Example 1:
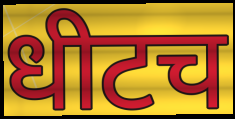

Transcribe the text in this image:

धीटच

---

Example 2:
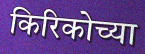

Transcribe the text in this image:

किरिकोच्या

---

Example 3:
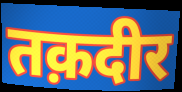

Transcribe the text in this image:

तक़दीर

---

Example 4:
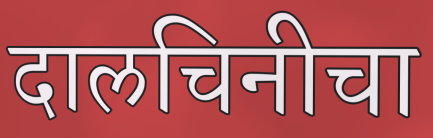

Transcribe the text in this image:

दालचिनीचा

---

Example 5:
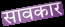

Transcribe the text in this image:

सावकार